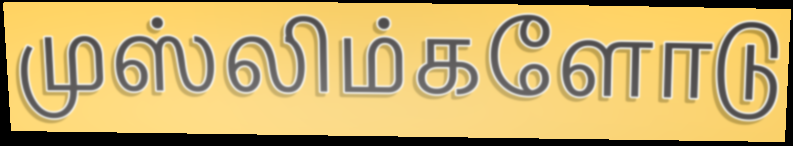
முஸ்லிம்களோடு